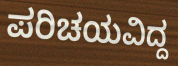
ಪರಿಚಯವಿದ್ದ